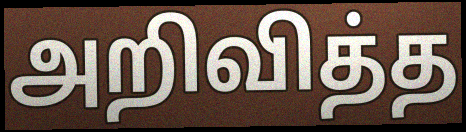
அறிவித்த